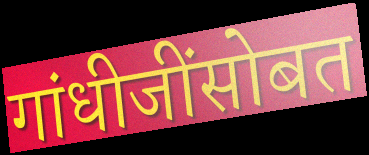
गांधीजींसोबत